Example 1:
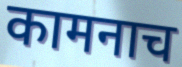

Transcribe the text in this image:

कामनाच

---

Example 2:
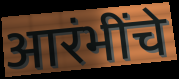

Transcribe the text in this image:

आरंभींचे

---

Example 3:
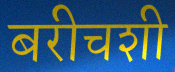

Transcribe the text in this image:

बरीचशी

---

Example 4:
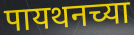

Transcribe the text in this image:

पायथनच्या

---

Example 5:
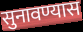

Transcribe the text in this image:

सुनावण्यास